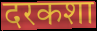
दरकशा